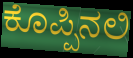
ಕೊಪ್ಪಿನಲಿ